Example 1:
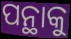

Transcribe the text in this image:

ପନ୍ଥାକୁ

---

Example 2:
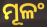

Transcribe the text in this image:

ମୂଳଂ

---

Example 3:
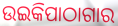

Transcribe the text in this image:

ଉଇକିପାଠାଗାର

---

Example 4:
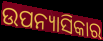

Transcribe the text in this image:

ଉପନ୍ୟାସିକାର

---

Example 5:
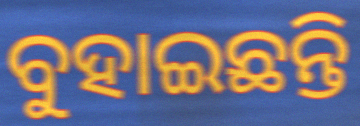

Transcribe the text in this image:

ବୁହାଇଛନ୍ତି